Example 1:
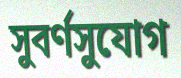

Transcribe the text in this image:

সুবর্ণসুযোগ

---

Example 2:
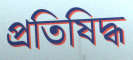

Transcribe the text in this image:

প্রতিষিদ্ধ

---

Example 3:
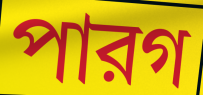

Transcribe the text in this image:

পারগ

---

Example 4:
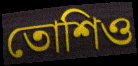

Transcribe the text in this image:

তোশিও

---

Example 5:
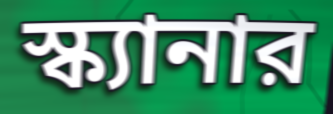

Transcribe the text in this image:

স্ক্যানার